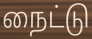
நைட்டு